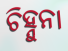
ଚିହ୍ନୁନା